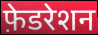
फ़ेडरेशन